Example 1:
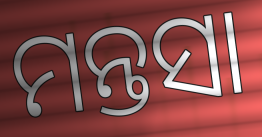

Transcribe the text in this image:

ମନ୍ତସା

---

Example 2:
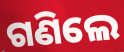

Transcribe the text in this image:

ଗଣିଲେ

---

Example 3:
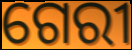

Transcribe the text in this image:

ଗେରୀ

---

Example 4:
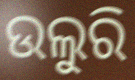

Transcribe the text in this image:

ଉଲୁରି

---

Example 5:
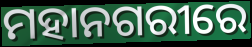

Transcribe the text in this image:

ମହାନଗରୀରେ